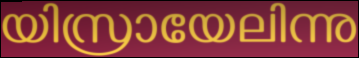
യിസ്രായേലിന്നു